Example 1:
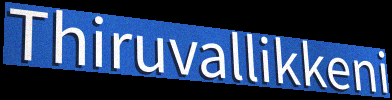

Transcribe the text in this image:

Thiruvallikkeni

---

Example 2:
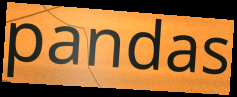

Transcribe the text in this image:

pandas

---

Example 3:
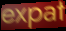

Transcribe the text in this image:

expat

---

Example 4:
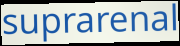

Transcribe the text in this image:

suprarenal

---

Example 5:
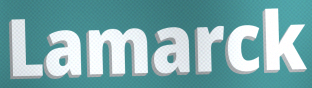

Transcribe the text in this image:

Lamarck